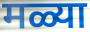
मळ्या